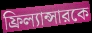
ফ্রিল্যান্সারকে